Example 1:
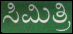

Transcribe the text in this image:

ಸಿಮಿತ್ರಿ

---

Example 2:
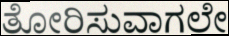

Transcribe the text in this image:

ತೋರಿಸುವಾಗಲೇ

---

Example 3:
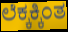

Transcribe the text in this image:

ಲೆಕ್ಕಕ್ಕಿಂತ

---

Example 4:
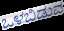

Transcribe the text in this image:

ಒಳಬಿಡುವ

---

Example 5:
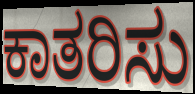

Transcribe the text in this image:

ಕಾತರಿಸು